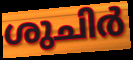
ശുചിർ